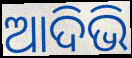
ଆଦିଭି